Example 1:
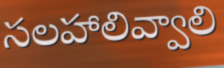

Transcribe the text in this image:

సలహాలివ్వాలి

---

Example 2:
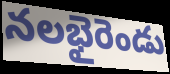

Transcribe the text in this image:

నలభైరెండు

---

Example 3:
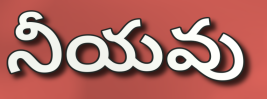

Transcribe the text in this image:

నీయవు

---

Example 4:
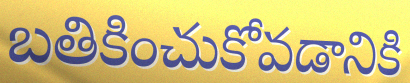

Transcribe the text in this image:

బతికించుకోవడానికి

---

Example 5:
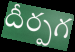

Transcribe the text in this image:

దీర్పగ